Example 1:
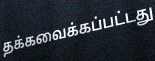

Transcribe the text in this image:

தக்கவைக்கப்பட்டது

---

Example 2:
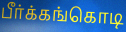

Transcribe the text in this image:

பீர்க்கங்கொடி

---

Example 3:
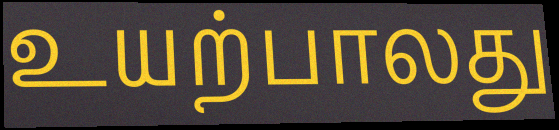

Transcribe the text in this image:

உயற்பாலது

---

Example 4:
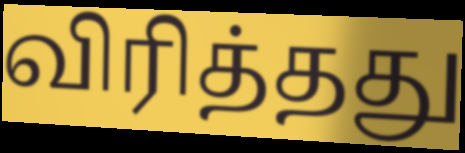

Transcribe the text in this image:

விரித்தது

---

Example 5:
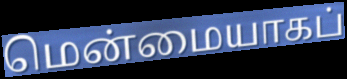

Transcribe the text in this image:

மென்மையாகப்